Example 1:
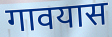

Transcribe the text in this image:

गावयास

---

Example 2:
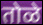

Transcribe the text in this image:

तोळे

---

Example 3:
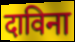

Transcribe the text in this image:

दाविना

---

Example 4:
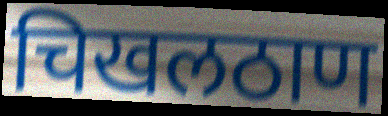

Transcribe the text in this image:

चिखलठाण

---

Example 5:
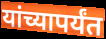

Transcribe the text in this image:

यांच्यापर्यंत